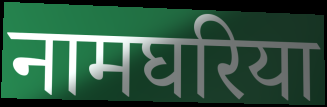
नामघरिया